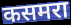
कसमरा